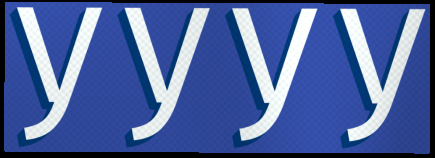
yyyy